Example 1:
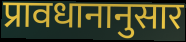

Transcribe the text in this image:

प्रावधानानुसार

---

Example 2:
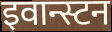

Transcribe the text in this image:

इवान्स्टन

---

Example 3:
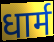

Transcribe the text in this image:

धार्म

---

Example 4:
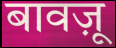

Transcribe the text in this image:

बावज़ू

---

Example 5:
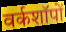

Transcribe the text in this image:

वर्कशॉपों